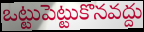
ఒట్టుపెట్టుకొనవద్దు